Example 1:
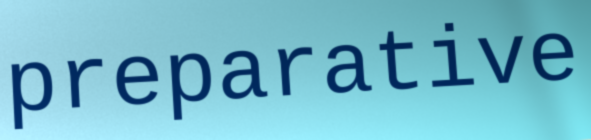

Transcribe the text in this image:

preparative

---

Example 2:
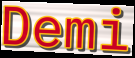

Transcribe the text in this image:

Demi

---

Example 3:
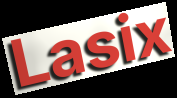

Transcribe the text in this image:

Lasix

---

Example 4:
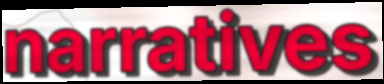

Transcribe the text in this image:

narratives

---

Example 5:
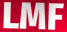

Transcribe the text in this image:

LMF